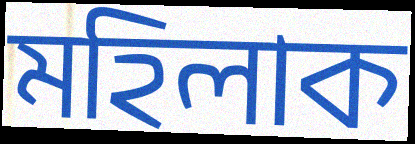
মহিলাক